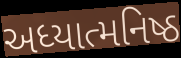
અધ્યાત્મનિષ્ઠ